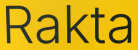
Rakta